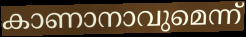
കാണാനാവുമെന്ന്